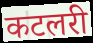
कटलरी